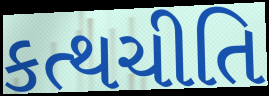
કત્થચીતિ